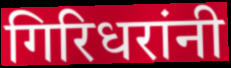
गिरिधरांनी